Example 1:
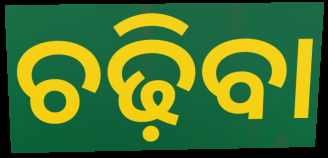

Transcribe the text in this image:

ଚଢ଼ିବା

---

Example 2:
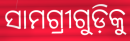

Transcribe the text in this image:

ସାମଗ୍ରୀଗୁଡ଼ିକୁ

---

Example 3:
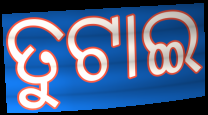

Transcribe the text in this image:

ତୁଟାଇ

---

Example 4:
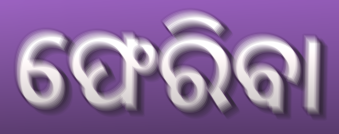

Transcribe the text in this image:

ଫେରିବା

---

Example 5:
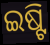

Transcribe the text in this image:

ଇଷ୍ଟି